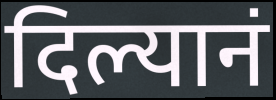
दिल्यानं